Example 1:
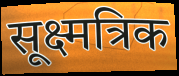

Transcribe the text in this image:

सूक्ष्मत्रिक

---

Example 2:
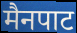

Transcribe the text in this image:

मैनपाट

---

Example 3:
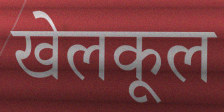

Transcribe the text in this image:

खेलकूल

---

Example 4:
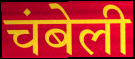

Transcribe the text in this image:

चंबेली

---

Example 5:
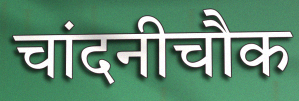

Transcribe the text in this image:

चांदनीचौक